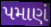
પમાણં